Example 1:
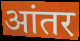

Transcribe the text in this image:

आंतर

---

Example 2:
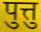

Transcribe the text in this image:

पुत्तु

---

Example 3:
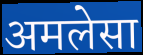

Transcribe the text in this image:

अमलेसा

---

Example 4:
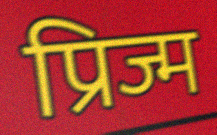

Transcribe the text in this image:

प्रिज्म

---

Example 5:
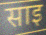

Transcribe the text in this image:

साइ